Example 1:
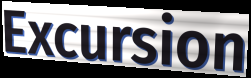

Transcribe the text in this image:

Excursion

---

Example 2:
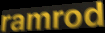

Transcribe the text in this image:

ramrod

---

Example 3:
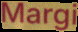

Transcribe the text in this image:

Margi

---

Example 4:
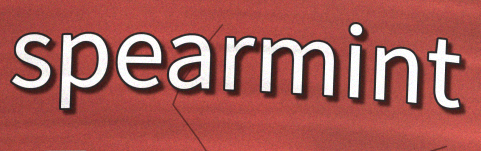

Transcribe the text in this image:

spearmint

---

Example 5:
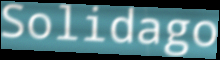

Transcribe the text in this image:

Solidago